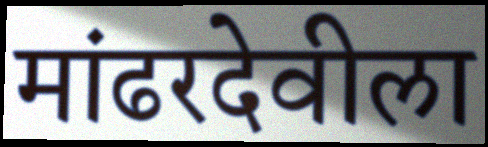
मांढरदेवीला